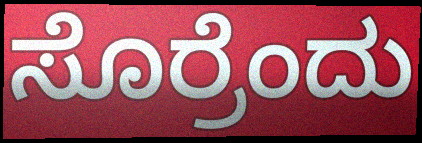
ಸೊರ್ರೆಂದು